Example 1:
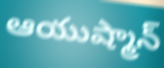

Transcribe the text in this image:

ఆయుష్మాన్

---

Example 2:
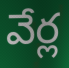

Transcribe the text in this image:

వేర్ల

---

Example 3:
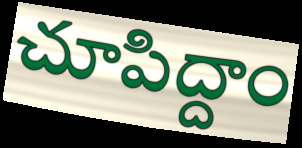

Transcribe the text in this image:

చూపిద్దాం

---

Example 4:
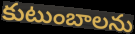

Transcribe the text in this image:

కుటుంబాలను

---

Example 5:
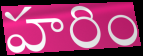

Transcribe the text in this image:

హరిం